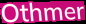
Othmer